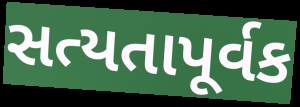
સત્યતાપૂર્વક